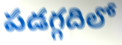
పడగ్గదిలో